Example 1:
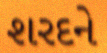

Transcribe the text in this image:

શરદને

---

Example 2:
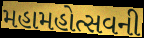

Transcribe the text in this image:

મહામહોત્સવની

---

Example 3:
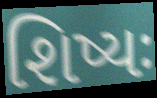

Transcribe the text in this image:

શિષ્યઃ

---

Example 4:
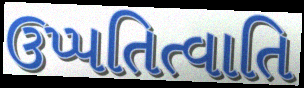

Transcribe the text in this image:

ઉપ્પતિત્વાતિ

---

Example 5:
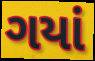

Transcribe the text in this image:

ગયાં